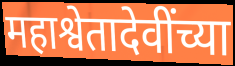
महाश्वेतादेवींच्या